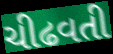
ચીઢવતી